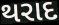
થરાદ